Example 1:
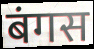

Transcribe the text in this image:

बंगस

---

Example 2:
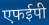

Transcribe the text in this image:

एफईपी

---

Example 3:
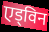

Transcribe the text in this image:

एड्विन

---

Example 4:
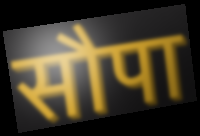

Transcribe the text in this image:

सौपा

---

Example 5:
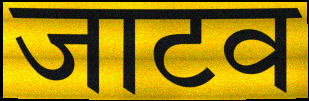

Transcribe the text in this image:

जाटव